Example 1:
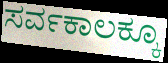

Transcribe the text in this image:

ಸರ್ವಕಾಲಕ್ಕೂ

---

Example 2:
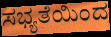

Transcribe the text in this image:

ಸಭ್ಯತೆಯಿಂದ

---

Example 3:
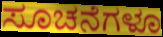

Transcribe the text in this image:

ಸೂಚನೆಗಳೂ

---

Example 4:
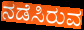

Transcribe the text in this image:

ನಡೆಸಿರುವ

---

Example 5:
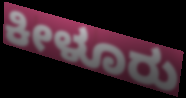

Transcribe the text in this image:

ಕೀಳೂರು